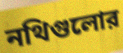
নথিগুলোর